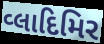
વ્લાદિમિર